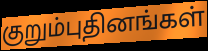
குறும்புதினங்கள்